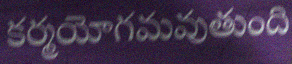
కర్మయోగమవుతుంది